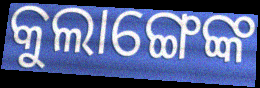
କୁଲାଙ୍ଗେଙ୍କ